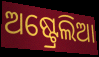
ଅଷ୍ଟ୍ରେଲିଆ